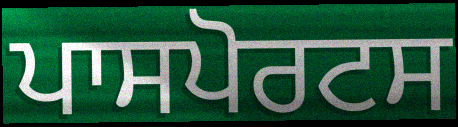
ਪਾਸਪੋਰਟਸ